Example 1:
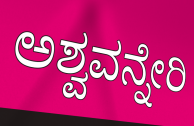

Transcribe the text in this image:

ಅಶ್ವವನ್ನೇರಿ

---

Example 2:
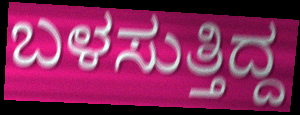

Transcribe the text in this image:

ಬಳಸುತ್ತಿದ್ದ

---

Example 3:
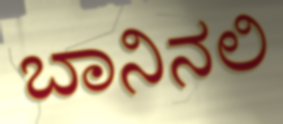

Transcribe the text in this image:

ಬಾನಿನಲಿ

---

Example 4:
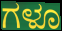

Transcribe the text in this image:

ಗಳೂ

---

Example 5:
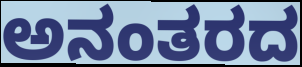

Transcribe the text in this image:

ಅನಂತರದ